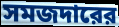
সমজদারের